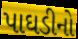
પાઘડીનો